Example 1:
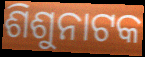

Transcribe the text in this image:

ଶିଶୁନାଟକ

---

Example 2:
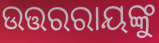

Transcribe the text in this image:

ଉତ୍ତରରାୟଙ୍କୁ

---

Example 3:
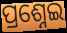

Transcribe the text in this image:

ପ୍ରଶ୍ନେଇ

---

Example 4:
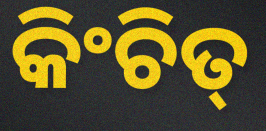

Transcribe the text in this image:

କିଂଚିତ୍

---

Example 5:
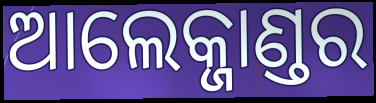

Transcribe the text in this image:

ଆଲେକ୍ଜାଣ୍ଡର